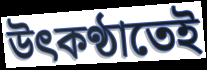
উৎকণ্ঠাতেই